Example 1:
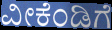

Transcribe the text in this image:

ವೀಕೆಂಡಿಗೆ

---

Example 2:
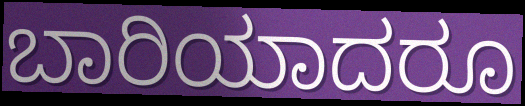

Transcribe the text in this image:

ಬಾರಿಯಾದರೂ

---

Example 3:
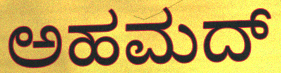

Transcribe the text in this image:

ಅಹಮದ್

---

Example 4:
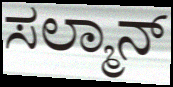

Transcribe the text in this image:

ಸಲ್ಮಾನ್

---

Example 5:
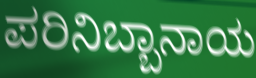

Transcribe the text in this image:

ಪರಿನಿಬ್ಬಾನಾಯ